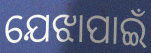
ଯେଝାପାଇଁ